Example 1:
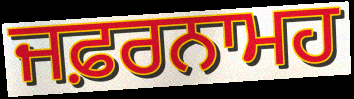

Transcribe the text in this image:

ਜਫ਼ਰਨਾਮਹ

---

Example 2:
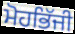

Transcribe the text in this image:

ਮੋਹਭਿੱਜੀ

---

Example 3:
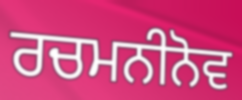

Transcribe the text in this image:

ਰਚਮਨੀਨੋਵ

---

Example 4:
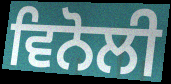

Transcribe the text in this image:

ਵਿਨੋਲੀ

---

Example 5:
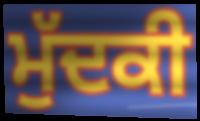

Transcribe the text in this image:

ਮੁੱਦਕੀ